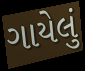
ગાયેલું